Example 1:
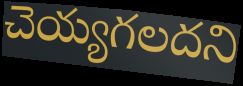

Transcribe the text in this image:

చెయ్యగలదని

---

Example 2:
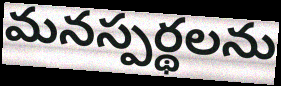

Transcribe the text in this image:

మనస్పర్థలను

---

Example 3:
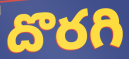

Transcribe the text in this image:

దొరగి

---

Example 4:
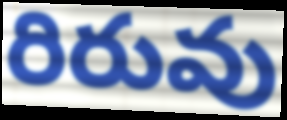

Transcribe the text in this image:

రిరువు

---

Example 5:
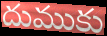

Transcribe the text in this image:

దుముకు